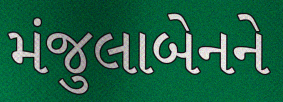
મંજુલાબેનને